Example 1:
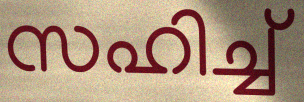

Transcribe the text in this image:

സഹിച്ച്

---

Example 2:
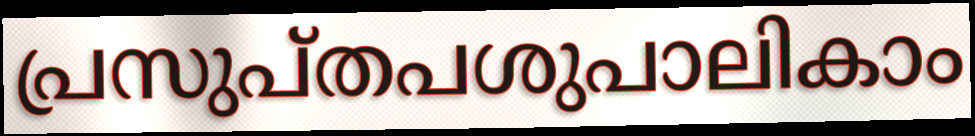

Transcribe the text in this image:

പ്രസുപ്തപശുപാലികാം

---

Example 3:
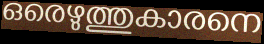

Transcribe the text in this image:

ഒരെഴുത്തുകാരനെ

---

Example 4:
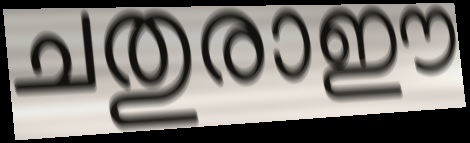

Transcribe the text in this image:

ചതുരാഈ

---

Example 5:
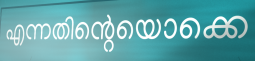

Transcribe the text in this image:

എന്നതിന്റെയൊക്കെ